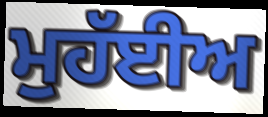
ਮੁਹੱਈਅ